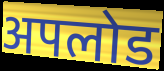
अपलोड